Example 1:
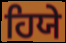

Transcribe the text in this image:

ਹਿਯੇ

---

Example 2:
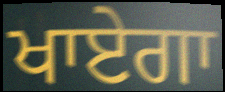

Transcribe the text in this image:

ਖਾਏਗਾ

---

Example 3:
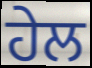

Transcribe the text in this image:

ਹੇਲ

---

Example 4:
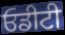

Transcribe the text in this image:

ਓਡੀਟੀ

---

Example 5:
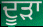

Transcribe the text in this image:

ਦੂੜਾ